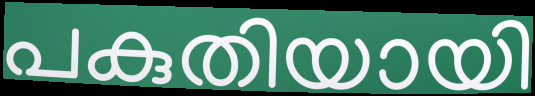
പകുതിയായി